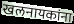
खलनायकांना